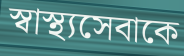
স্বাস্থ্যসেবাকে